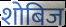
शोबिज